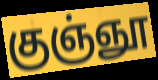
குஞ்ஞூ